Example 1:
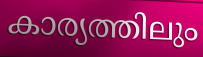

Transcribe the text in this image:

കാര്യത്തിലും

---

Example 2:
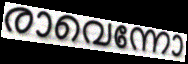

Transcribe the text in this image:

രാവെന്നോ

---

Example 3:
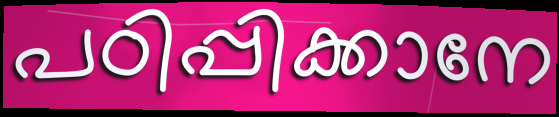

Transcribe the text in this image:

പഠിപ്പിക്കാനേ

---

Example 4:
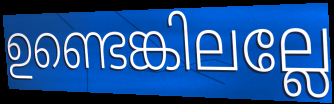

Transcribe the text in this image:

ഉണ്ടെങ്കിലല്ലേ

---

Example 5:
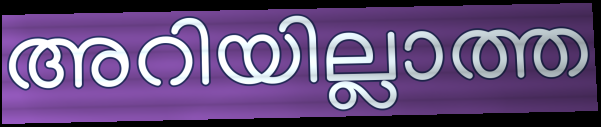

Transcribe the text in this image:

അറിയില്ലാത്ത